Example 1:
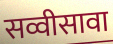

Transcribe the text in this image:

सव्वीसावा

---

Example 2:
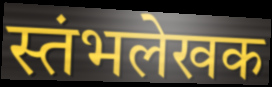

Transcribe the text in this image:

स्तंभलेखक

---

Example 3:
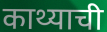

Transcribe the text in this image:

काथ्याची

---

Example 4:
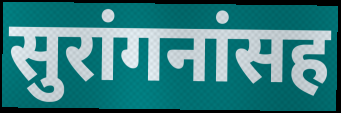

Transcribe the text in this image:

सुरांगनांसह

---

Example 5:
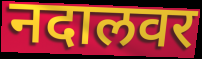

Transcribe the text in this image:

नदालवर